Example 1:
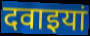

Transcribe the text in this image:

दवाइयां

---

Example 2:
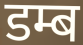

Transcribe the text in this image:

डम्ब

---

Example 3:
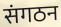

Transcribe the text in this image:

संगठन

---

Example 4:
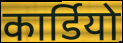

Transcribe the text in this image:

कार्डियो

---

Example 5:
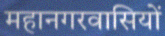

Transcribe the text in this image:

महानगरवासियों